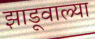
झाडूवाल्या